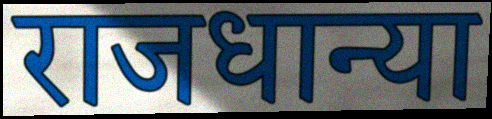
राजधान्या